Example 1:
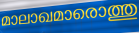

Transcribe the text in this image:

മാലാഖമാരൊത്തു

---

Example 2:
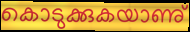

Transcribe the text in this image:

കൊടുക്കുകയാണു്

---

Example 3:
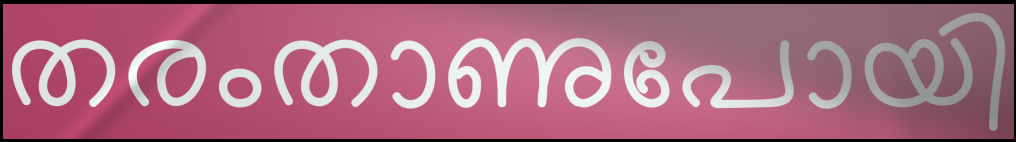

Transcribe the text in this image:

തരംതാണുപോയി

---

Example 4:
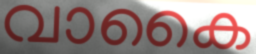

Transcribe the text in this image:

വാകൈ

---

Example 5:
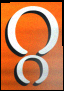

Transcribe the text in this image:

റ്റ